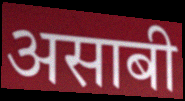
असाबी